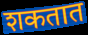
शकतात